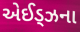
એઈડ્ઝના